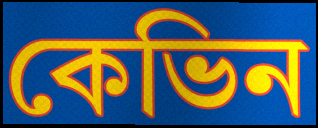
কেভিন